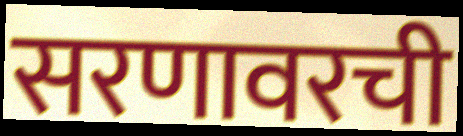
सरणावरची